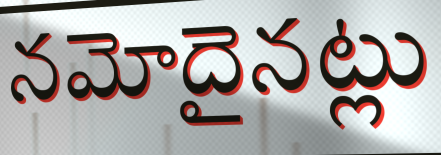
నమోదైనట్లు